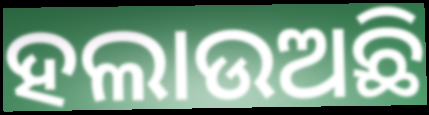
ହଲାଉଅଛି